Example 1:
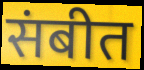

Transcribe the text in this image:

संबीत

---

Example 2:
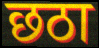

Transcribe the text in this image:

छठा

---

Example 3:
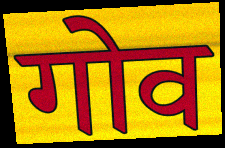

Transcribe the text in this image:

गोव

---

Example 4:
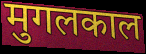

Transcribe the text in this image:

मुगलकाल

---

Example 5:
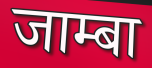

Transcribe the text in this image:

जाम्बा